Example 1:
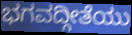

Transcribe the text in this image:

ಭಗವದ್ಗೀತೆಯು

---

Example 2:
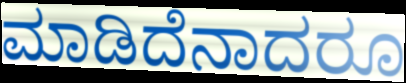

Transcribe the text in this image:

ಮಾಡಿದೆನಾದರೂ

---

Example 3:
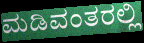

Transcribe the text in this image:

ಮಡಿವಂತರಲ್ಲಿ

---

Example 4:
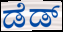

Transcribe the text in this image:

ಡೆಡ್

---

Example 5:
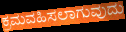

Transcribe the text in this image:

ಕ್ರಮವಹಿಸಲಾಗುವುದು